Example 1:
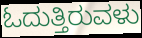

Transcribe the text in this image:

ಓದುತ್ತಿರುವಳು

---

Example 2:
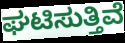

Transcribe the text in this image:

ಘಟಿಸುತ್ತಿವೆ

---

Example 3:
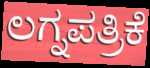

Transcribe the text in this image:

ಲಗ್ನಪತ್ರಿಕೆ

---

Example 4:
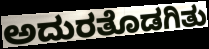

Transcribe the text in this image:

ಅದುರತೊಡಗಿತು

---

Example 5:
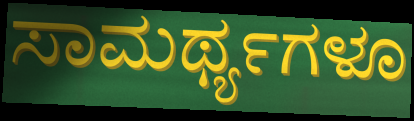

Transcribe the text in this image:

ಸಾಮರ್ಥ್ಯಗಳೂ